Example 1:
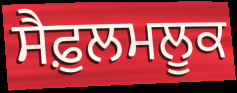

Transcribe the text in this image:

ਸੈਫ਼ੁਲਮਲੂਕ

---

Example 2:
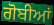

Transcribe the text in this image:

ਗੋਬੀਆਂ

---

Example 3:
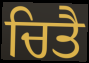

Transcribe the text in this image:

ਚਿਤੈ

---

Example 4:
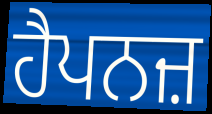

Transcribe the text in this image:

ਹੈਪਨਜ਼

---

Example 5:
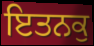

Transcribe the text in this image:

ਇਤਨਕੁ